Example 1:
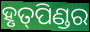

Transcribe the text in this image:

ହୃତ୍‌ପିଣ୍ଡର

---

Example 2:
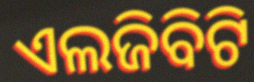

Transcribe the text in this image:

ଏଲଜିବିଟି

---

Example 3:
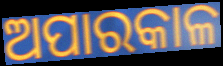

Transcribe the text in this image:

ଅପାରକାଳ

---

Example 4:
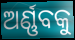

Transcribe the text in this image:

ଅର୍ଣ୍ଣବକୁ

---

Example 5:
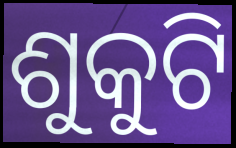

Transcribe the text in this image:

ଶୁକୁଟି